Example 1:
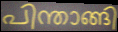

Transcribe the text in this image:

പിന്താങ്ങി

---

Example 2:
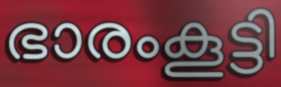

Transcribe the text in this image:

ഭാരംകൂട്ടി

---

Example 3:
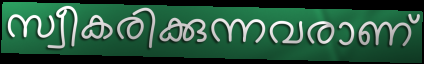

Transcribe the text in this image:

സ്വീകരിക്കുന്നവരാണ്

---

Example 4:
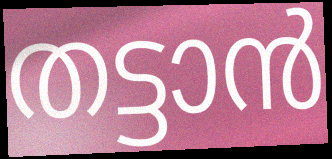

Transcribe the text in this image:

തട്ടാൻ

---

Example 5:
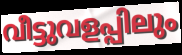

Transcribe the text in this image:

വീട്ടുവളപ്പിലും